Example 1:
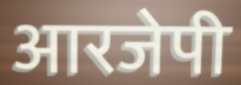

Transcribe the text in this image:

आरजेपी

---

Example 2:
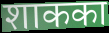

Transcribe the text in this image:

शाकका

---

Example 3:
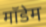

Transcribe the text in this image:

मॉडेम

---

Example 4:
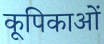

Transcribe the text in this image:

कूपिकाओं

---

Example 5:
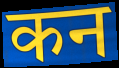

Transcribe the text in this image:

कन